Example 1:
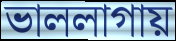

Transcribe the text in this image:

ভাললাগায়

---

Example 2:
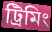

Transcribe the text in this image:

ট্রিমিং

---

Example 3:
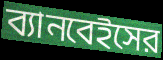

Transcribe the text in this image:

ব্যানবেইসের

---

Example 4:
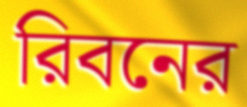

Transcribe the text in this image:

রিবনের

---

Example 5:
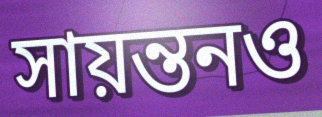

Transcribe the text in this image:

সায়ন্তনও